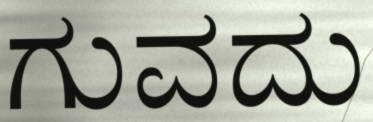
ಗುವದು